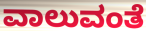
ವಾಲುವಂತೆ